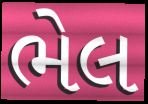
ભેલ